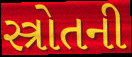
સ્ત્રોતની